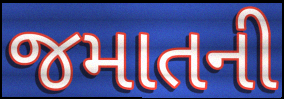
જમાતની